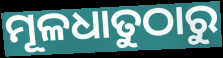
ମୂଳଧାତୁଠାରୁ